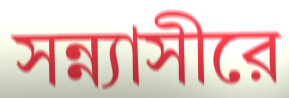
সন্ন্যাসীরে